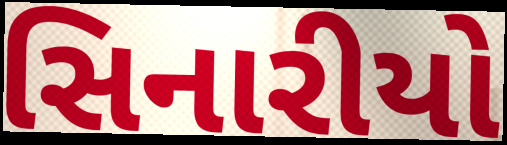
સિનારીયો